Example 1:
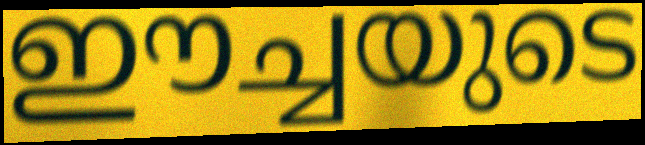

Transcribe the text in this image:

ഈച്ചയുടെ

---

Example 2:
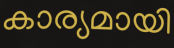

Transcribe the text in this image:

കാര്യമായി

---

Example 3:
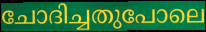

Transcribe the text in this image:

ചോദിച്ചതുപോലെ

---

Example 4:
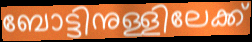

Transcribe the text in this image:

ബോട്ടിനുള്ളിലേക്ക്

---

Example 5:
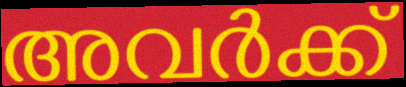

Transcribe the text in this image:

അവർക്ക്